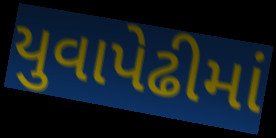
યુવાપેઢીમાં